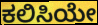
ಕಲಿಸಿಯೇ